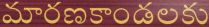
మారణకాండలకు